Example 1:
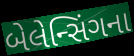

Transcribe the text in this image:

બેલેન્સિંગના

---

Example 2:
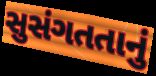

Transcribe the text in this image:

સુસંગતતાનું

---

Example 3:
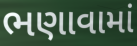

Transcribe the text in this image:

ભણાવામાં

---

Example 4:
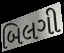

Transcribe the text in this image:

બિલગી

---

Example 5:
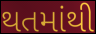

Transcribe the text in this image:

થતમાંથી